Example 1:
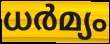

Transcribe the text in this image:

ധർമ്യം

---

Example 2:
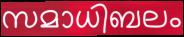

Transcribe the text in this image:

സമാധിബലം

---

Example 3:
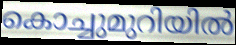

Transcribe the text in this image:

കൊച്ചുമുറിയിൽ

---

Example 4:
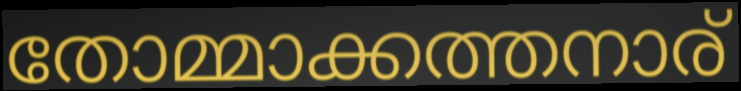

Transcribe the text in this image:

തോമ്മാക്കത്തനാര്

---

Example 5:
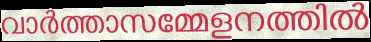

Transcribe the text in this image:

വാർത്താസമ്മേളനത്തിൽ